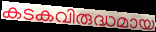
കടകവിരുദ്ധമായ